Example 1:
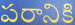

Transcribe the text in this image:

పరానికి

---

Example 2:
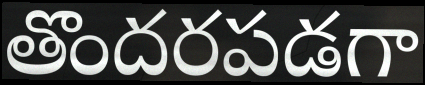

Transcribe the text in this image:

తొందరపడగా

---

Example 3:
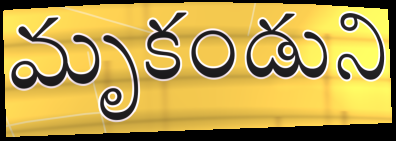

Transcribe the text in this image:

మృకండుని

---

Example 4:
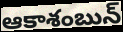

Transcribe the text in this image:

ఆకాశంబున్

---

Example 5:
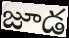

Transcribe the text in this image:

జూడ